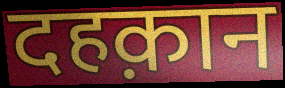
दहक़ान